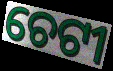
ଚେଟୀ